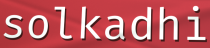
solkadhi